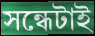
সন্ধেটাই